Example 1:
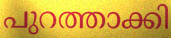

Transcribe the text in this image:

പുറത്താക്കി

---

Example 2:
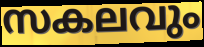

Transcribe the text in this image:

സകലവും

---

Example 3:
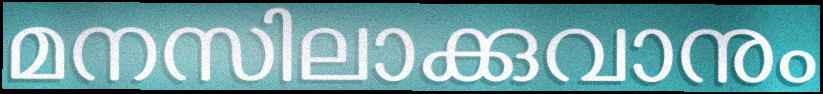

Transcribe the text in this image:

മനസിലാക്കുവാനും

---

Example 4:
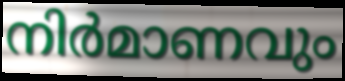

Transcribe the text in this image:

നിർമാണവും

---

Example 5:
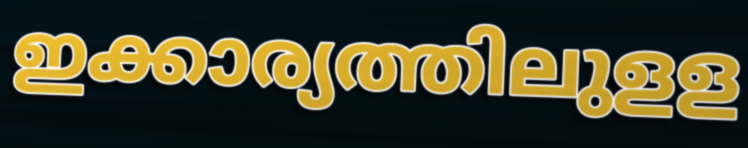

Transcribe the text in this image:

ഇക്കാര്യത്തിലുളള